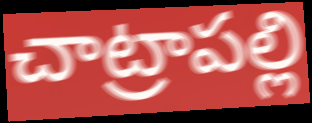
చాట్రాపల్లి